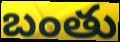
బంతు